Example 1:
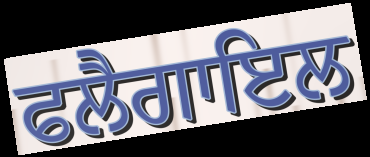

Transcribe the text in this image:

ਫਲੈਗਾਇਲ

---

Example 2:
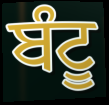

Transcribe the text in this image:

ਬੰਟੂ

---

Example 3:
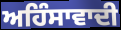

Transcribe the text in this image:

ਅਹਿੰਸਾਵਾਦੀ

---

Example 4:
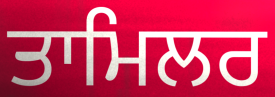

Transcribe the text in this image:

ਤਾਮਿਲਰ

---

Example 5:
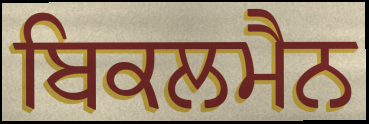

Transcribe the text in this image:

ਬਿਕਲਮੈਨ